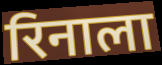
रिनाला